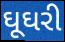
ઘૂઘરી